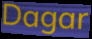
Dagar